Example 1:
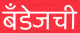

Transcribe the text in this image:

बँडेजची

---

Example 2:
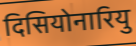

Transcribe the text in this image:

दिसियोनारियु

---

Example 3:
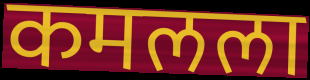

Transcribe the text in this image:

कमलला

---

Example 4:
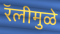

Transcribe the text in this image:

रॅलीमुळे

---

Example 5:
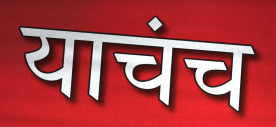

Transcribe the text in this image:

याचंच